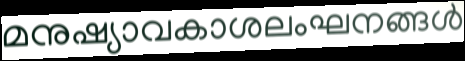
മനുഷ്യാവകാശലംഘനങ്ങൾ